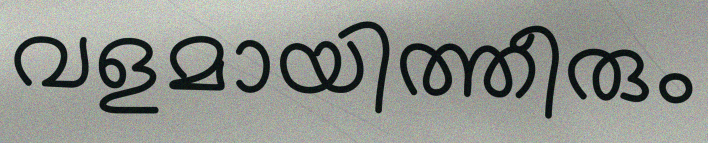
വളമായിത്തീരും